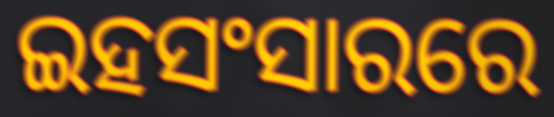
ଇହସଂସାରରେ